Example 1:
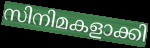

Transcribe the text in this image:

സിനിമകളാക്കി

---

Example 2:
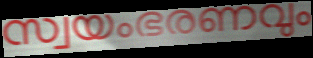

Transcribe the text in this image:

സ്വയംഭരണവും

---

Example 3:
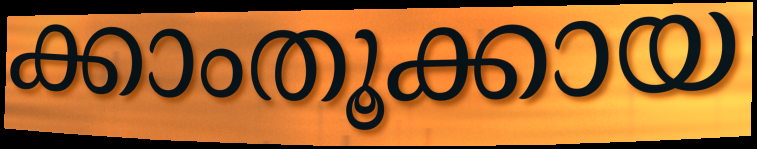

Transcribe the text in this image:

ക്കാംതൂക്കായ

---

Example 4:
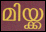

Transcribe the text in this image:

മിയ്ക്ക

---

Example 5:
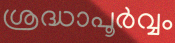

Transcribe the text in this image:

ശ്രദ്ധാപൂർവ്വം